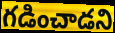
గడించాడని